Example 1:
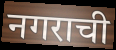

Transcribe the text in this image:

नगराची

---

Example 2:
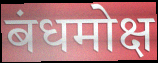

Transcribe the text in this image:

बंधमोक्ष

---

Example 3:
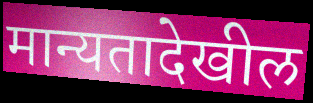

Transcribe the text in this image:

मान्यतादेखील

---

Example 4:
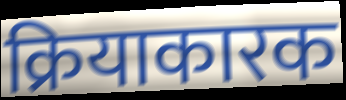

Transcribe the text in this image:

क्रियाकारक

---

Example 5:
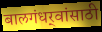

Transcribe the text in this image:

बालगंधर्वांसाठी